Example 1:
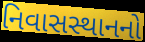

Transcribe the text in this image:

નિવાસસ્થાનનો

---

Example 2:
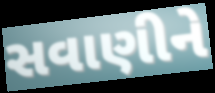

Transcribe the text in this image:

સવાણીને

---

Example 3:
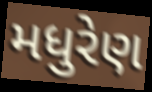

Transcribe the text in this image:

મધુરેણ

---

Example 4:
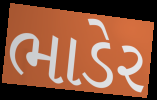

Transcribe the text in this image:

ભાડેર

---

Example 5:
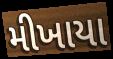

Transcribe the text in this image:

મીખાયા